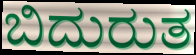
ಬಿದುರುತ